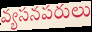
వ్యసనపరులు